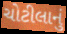
ચોટીલાનું